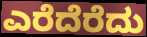
ಎರೆದೆರೆದು